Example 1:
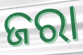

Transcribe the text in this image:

ଜରା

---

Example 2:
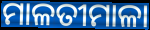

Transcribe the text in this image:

ମାଳତୀମାଳା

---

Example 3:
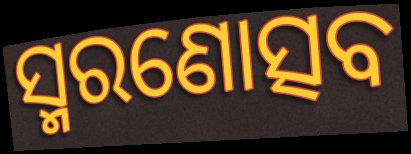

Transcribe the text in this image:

ସ୍ମରଣୋତ୍ସବ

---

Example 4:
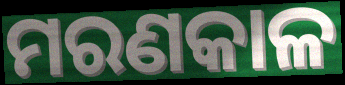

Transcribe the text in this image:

ମରଣକାଳ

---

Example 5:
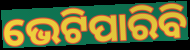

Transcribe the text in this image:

ଭେଟିପାରିବି